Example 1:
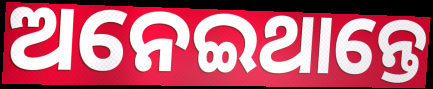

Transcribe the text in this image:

ଅନେଇଥାନ୍ତେ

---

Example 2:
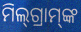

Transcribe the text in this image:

ମିଲ୍‌ଗ୍ରାମ୍‌ଙ୍କ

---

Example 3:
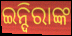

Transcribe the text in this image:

ଇନ୍ଦିରାଙ୍କ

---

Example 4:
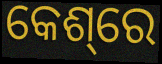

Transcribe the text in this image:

କେଶ୍‌ରେ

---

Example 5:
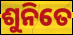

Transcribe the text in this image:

ଶୁନିତେ